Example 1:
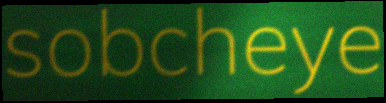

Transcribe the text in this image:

sobcheye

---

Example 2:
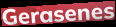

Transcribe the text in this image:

Gerasenes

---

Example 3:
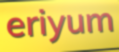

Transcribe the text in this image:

eriyum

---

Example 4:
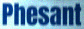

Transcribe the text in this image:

Phesant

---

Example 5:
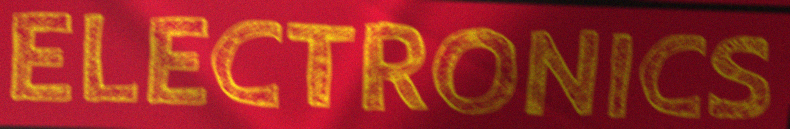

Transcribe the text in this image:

ELECTRONICS